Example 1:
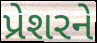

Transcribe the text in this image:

પ્રેશરને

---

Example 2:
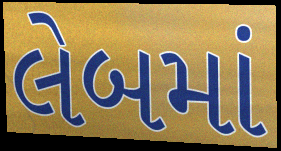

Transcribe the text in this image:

લેબમાં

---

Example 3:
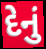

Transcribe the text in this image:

દેનું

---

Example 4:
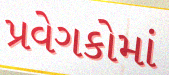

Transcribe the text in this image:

પ્રવેગકોમાં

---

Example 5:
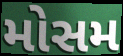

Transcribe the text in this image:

મોસમ